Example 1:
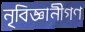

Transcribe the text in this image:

নৃবিজ্ঞানীগণ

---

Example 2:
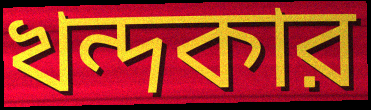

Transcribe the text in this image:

খন্দকার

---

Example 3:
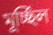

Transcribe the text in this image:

মূর্চ্ছিল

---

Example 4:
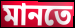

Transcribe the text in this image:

মানতে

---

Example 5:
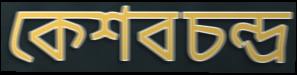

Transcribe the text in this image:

কেশবচন্দ্র